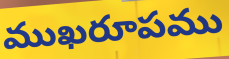
ముఖరూపము